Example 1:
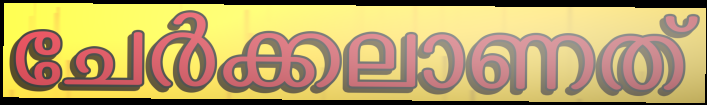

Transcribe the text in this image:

ചേർക്കലാണത്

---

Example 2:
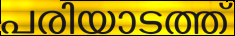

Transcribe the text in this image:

പരിയാടത്ത്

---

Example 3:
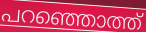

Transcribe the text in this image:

പറഞ്ഞൊത്ത്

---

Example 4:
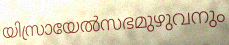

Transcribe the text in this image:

യിസ്രായേൽസഭമുഴുവനും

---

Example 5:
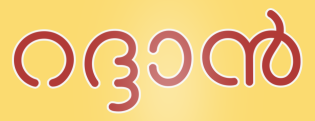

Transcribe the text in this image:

റദ്ദാൻ